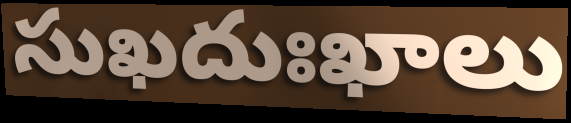
సుఖదుఃఖాలు